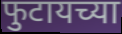
फुटायच्या